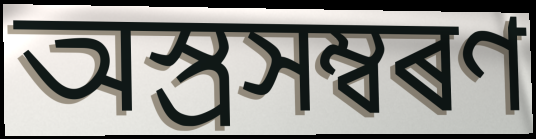
অস্ত্ৰসম্বৰণ